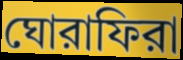
ঘোরাফিরা